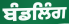
ਬੰਡਲਿੰਗ